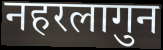
नहरलागुन